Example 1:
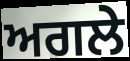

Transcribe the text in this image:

ਅਗਲੇ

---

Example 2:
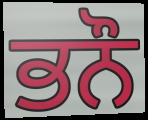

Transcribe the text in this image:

ਭਨੌ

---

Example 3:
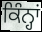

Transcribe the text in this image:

ਕਿੰਨ੍ਹਾਂ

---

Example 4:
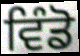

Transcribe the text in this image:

ਵਿੰਡੋ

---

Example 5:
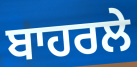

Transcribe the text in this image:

ਬਾਹਰਲੇ